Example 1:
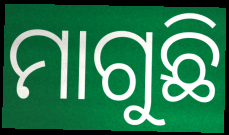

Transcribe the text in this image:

ମାଗୁଛି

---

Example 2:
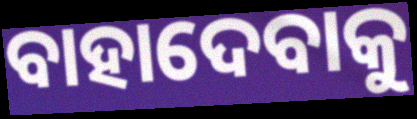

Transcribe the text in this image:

ବାହାଦେବାକୁ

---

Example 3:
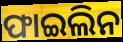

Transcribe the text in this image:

ଫାଇଲିନ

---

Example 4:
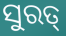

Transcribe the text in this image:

ସୁରତ୍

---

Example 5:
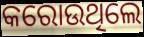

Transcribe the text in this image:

କରୋଉଥିଲେ